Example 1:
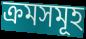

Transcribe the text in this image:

ক্ৰমসমূহ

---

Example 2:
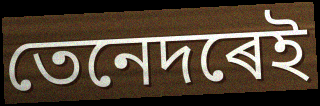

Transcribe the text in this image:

তেনেদৰেই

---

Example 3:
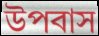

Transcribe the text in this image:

উপবাস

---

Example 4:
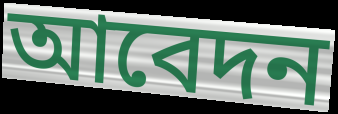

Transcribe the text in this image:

আবেদন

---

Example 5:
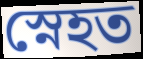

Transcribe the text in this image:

স্নেহত